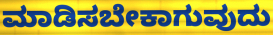
ಮಾಡಿಸಬೇಕಾಗುವುದು